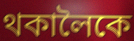
থকালৈকে